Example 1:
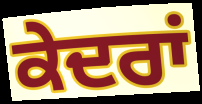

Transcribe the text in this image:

ਕੇਦਰਾਂ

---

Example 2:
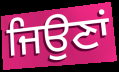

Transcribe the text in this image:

ਜਿਉਣਾਂ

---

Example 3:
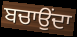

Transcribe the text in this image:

ਬਚਾਉਂਦਾ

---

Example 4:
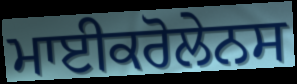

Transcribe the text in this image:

ਮਾਈਕਰੋਲੇਨਸ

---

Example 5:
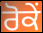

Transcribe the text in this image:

ਰੋਕੇਂ